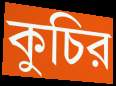
কুচির